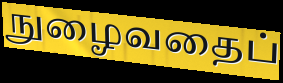
நுழைவதைப்